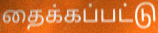
தைக்கப்பட்டு